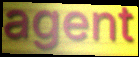
agent